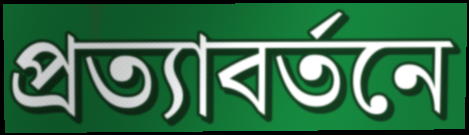
প্রত্যাবর্তনে